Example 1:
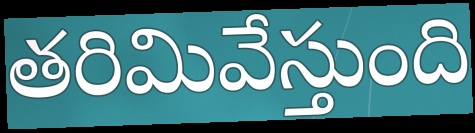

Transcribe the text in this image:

తరిమివేస్తుంది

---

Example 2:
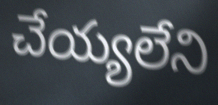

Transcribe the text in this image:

చేయ్యలేని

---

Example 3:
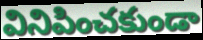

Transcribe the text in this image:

వినిపించకుండా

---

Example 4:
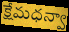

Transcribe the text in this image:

క్షేమధన్వా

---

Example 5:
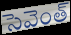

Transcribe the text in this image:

సెవెంత్